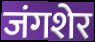
जंगशेर